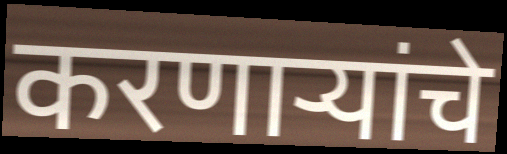
करणाऱ्यांचे